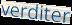
verditer